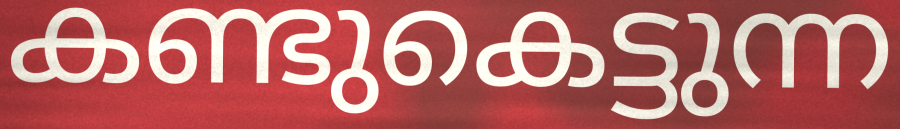
കണ്ടുകെട്ടുന്ന